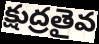
క్షుద్రతైవ